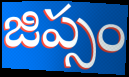
జిప్సం